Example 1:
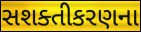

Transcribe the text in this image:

સશક્તીકરણના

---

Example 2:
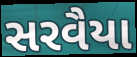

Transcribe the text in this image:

સરવૈયા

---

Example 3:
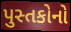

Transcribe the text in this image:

પુસ્તકોનો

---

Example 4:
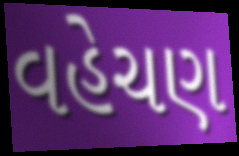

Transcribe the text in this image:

વહેચણ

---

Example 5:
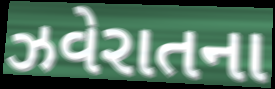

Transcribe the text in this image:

ઝવેરાતના